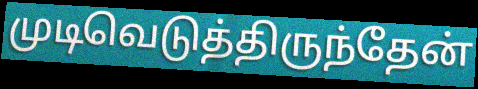
முடிவெடுத்திருந்தேன்